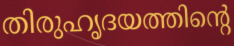
തിരുഹൃദയത്തിന്റെ